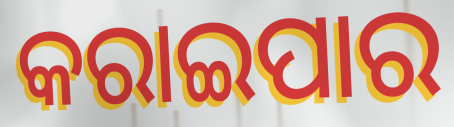
କରାଇପାର